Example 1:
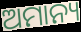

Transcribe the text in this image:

ଅମାନ୍ୟ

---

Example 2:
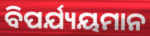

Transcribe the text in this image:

ବିପର୍ଯ୍ୟୟମାନ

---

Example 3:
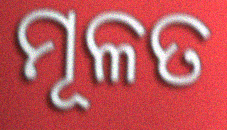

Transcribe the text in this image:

ମୂଳତ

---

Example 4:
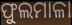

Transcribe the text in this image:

ଫୁଲମାଳା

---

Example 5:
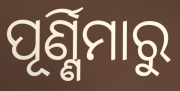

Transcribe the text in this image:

ପୂର୍ଣ୍ଣିମାରୁ